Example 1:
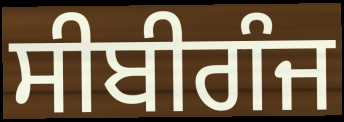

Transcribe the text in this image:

ਸੀਬੀਗੰਜ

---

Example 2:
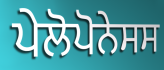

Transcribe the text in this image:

ਪੇਲੋਪੋਨੇਸਸ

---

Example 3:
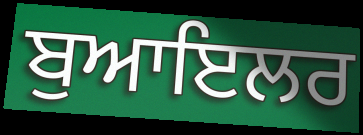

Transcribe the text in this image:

ਬੁਆਇਲਰ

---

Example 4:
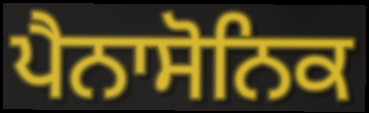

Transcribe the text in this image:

ਪੈਨਾਸੋਨਿਕ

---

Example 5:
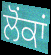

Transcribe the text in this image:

ਲੋਂਕਾਂ